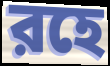
রহে